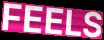
FEELS